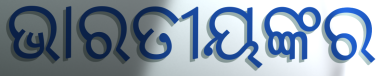
ଭାରତୀୟଙ୍କର